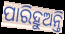
ପାରିହୁଅନ୍ତି